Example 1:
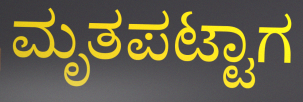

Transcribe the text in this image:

ಮೃತಪಟ್ಟಾಗ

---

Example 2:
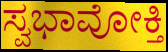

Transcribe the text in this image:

ಸ್ವಭಾವೋಕ್ತಿ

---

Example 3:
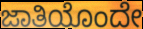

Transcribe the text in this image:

ಜಾತಿಯೊಂದೇ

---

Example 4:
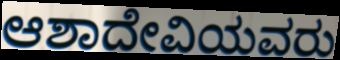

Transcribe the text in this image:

ಆಶಾದೇವಿಯವರು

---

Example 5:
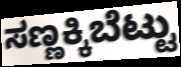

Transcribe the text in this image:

ಸಣ್ಣಕ್ಕಿಬೆಟ್ಟು